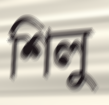
শিলু